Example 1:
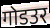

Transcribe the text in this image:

गोडउर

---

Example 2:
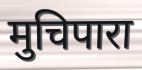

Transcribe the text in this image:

मुचिपारा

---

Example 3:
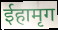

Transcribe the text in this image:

ईहामृग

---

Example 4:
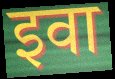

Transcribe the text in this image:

इवा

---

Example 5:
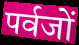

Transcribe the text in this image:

पर्वजों